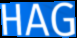
HAG